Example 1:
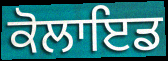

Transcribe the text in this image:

ਕੋਲਾਇਡ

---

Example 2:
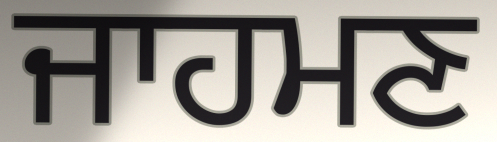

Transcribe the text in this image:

ਜਾਹਮਣ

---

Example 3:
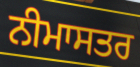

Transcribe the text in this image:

ਨੀਮਾਸਤਰ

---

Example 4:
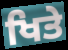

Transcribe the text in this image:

ਖਿਤੇ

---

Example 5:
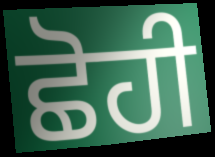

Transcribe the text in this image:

ਛੋਹੀ